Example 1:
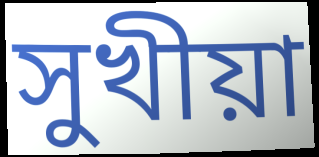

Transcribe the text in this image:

সুখীয়া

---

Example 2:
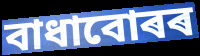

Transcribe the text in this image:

বাধাবোৰৰ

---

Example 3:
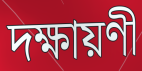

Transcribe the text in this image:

দক্ষায়ণী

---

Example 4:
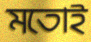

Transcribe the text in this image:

মতোই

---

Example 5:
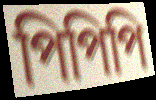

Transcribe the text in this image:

পিপিপি